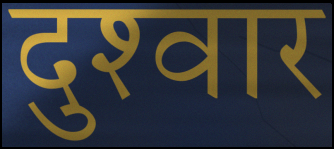
दुश्‍वार